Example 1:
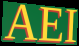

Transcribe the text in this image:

AEI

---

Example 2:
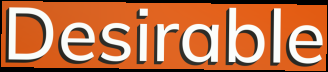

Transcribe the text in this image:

Desirable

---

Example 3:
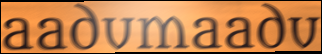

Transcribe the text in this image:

aadumaadu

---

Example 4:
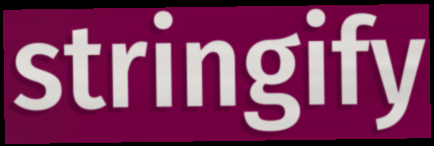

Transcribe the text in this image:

stringify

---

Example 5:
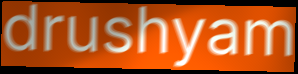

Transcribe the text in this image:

drushyam